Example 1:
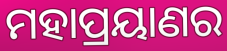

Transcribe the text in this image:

ମହାପ୍ରୟାଣର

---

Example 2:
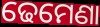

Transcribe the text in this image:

ଢେମେଣା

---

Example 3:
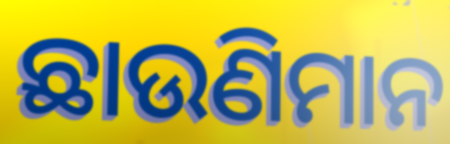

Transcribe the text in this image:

ଛାଉଣିମାନ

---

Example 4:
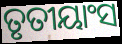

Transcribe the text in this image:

ତୃତୀୟାଂସ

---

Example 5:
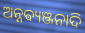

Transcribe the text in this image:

ଅନ୍ନଵ୍ୟଞ୍ଜନାଦି